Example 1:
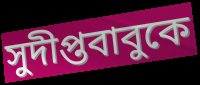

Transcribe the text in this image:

সুদীপ্তবাবুকে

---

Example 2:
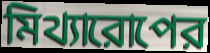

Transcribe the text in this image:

মিথ্যারোপের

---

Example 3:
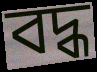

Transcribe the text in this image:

বদ্ধ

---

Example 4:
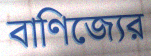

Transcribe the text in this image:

বাণিজ্যের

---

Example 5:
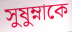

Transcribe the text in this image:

সুষুম্নাকে